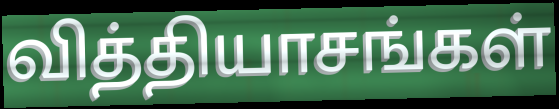
வித்தியாசங்கள்